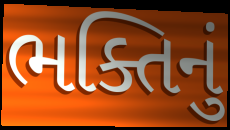
ભક્તિનું